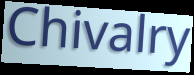
Chivalry